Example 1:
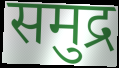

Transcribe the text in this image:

समुद्र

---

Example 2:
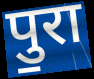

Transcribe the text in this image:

पु॒रा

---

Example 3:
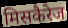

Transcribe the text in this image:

मिसकैरेज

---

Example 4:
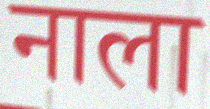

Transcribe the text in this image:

नाला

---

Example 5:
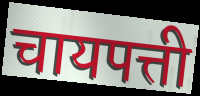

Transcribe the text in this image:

चायपत्ती